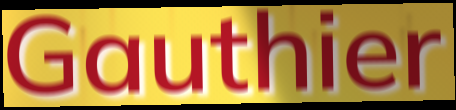
Gauthier